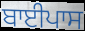
ਬਾਈਪਾਸ